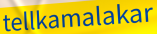
tellkamalakar